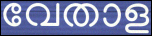
വേതാള